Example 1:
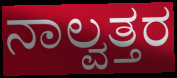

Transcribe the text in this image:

ನಾಲ್ವತ್ತರ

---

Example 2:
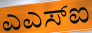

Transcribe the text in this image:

ಎಎಸ್ಐ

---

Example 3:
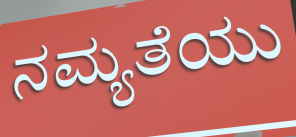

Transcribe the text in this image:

ನಮ್ಯತೆಯು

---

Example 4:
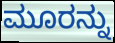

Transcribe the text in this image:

ಮೂರನ್ನು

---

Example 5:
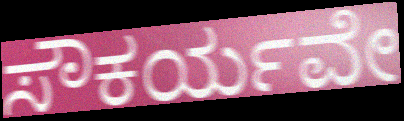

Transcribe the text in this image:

ಸೌಕರ್ಯವೇ